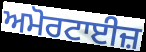
ਅਮੋਰਟਾਈਜ਼